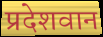
प्रदेशवान